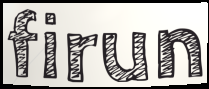
firun